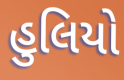
હુલિયો